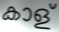
കാള്